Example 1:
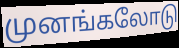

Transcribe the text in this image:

முனங்கலோடு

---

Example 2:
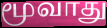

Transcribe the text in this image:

மூவாது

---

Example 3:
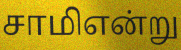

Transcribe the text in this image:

சாமிஎன்று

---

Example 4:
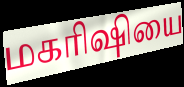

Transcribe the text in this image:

மகரிஷியை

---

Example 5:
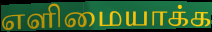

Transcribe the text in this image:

எளிமையாக்க